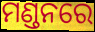
ମଣ୍ଡନରେ